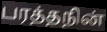
பரத்தநின்